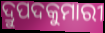
ଦ୍ରୁପଦକୁମାରୀ